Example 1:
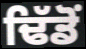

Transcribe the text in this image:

ਢਿੱਡੋਂ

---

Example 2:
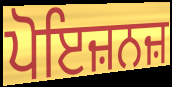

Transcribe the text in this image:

ਪੋਇਜ਼ਨਜ਼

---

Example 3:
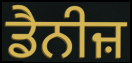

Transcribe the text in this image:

ਡੈਨੀਜ਼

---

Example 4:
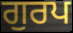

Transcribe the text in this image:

ਗੁਰਪ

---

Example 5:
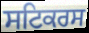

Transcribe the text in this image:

ਸਟਿਕਰਸ